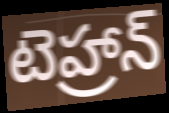
టెహ్రాన్